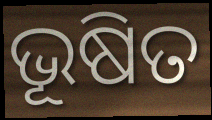
ଭୂଷିତ